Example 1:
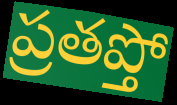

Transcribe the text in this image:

ప్రతప్తో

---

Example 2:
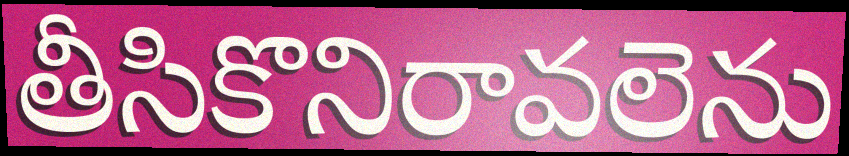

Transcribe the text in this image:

తీసికొనిరావలెను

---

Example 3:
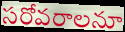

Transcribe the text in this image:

సరోవరాలనూ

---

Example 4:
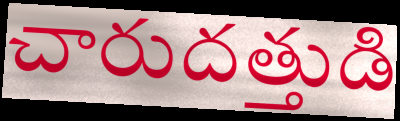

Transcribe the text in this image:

చారుదత్తుడి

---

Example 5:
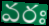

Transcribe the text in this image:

వరః